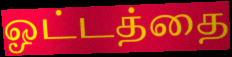
ஓட்டத்தை